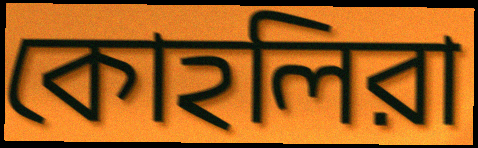
কোহলিরা